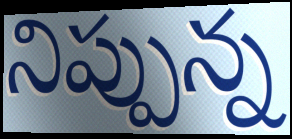
నిప్పున్న